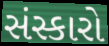
સંસ્કારો